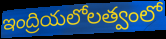
ఇంద్రియలోలత్వంలో